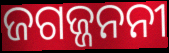
ଜଗଜ୍ଜନନୀ